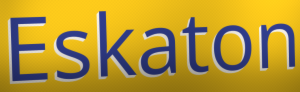
Eskaton